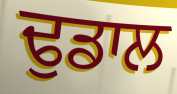
ਢੁਡਾਲ